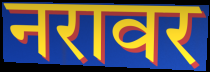
नरावर